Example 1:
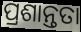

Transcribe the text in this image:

ପ୍ରଶାନ୍ତତା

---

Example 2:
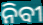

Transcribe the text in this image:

ନିବୀ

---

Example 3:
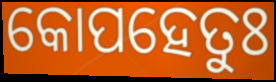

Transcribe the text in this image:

କୋପହେତୁଃ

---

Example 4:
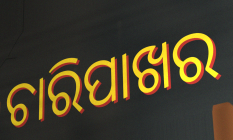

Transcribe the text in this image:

ଚାରିପାଖର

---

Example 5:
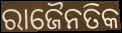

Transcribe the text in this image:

ରାଜୈନତିକ